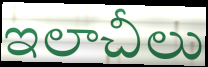
ఇలాచీలు